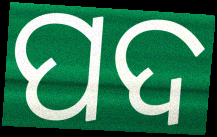
ପଦ